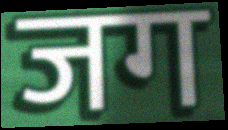
जग